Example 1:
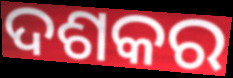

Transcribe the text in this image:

ଦଶକର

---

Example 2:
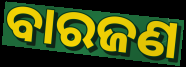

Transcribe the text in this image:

ବାରଜଣ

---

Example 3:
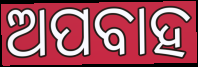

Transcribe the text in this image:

ଅପବାହ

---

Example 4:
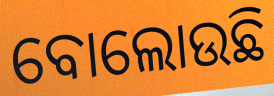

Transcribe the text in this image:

ବୋଲୋଉଛି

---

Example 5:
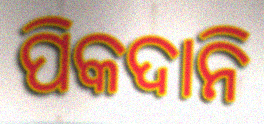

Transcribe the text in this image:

ପିକଦାନି